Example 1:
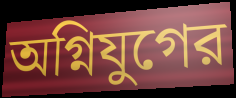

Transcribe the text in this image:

অগ্নিযুগের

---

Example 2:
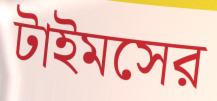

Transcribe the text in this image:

টাইমসের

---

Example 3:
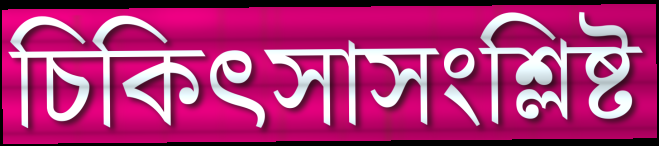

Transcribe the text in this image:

চিকিৎসাসংশ্লিষ্ট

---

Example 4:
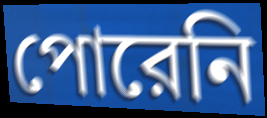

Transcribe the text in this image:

পোরেনি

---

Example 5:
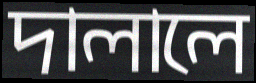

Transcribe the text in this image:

দালালে